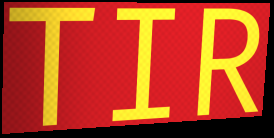
TIR